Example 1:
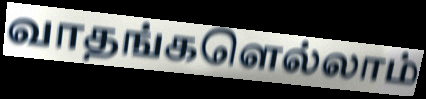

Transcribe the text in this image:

வாதங்களெல்லாம்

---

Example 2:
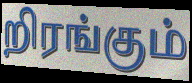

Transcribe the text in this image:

றிரங்கும்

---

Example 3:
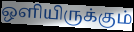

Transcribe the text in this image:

ஒளியிருக்கும்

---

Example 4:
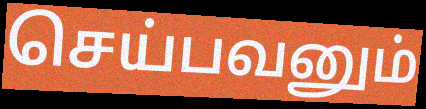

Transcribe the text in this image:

செய்பவனும்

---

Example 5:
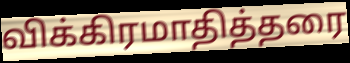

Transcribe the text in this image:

விக்கிரமாதித்தரை